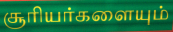
சூரியர்களையும்